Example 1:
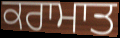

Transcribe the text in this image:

ਕਰਾਮਾਤ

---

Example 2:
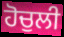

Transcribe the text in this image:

ਹੋਚੁਲੀ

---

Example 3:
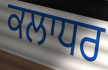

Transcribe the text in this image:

ਕਲਾਧਰ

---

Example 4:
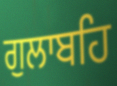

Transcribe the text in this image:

ਗੁਲਾਬਹਿ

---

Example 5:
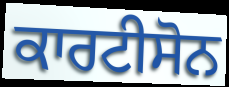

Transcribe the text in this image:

ਕਾਰਟੀਸੋਨ